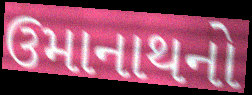
ઉમાનાથનો